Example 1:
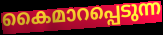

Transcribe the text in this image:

കൈമാറപ്പെടുന്ന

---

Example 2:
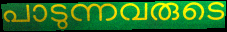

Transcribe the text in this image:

പാടുന്നവരുടെ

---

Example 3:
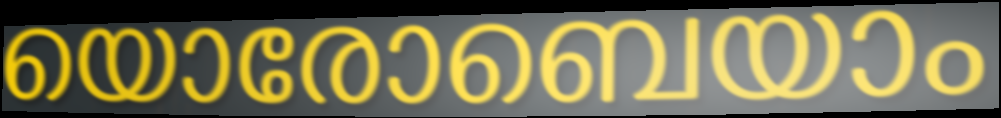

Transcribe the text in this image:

യൊരോബെയാം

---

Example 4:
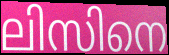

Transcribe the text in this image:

ലിസിനെ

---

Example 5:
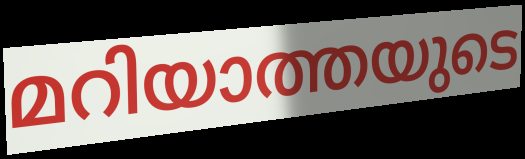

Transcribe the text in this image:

മറിയാത്തയുടെ